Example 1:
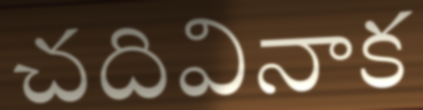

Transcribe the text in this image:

చదివినాక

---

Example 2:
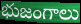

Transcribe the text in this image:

భుజంగాలు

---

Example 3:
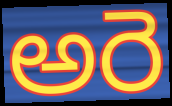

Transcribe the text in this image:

అరె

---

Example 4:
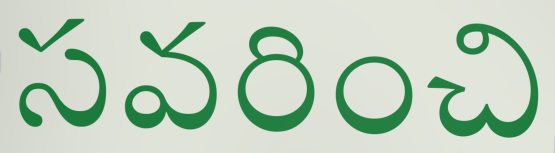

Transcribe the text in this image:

సవరించి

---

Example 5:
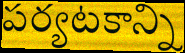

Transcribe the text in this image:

పర్యటకాన్ని